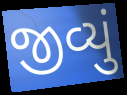
જીવ્યું